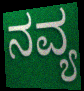
ನವ್ಯ